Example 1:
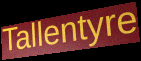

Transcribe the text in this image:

Tallentyre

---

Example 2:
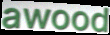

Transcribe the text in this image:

awood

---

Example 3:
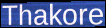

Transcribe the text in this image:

Thakore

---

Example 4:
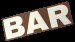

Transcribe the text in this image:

BAR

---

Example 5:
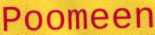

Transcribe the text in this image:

Poomeen